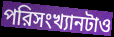
পরিসংখ্যানটাও